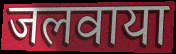
जलवाया